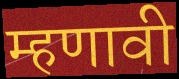
म्हणावी